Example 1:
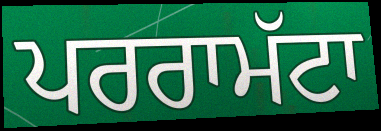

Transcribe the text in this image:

ਪਰਰਾਮੱਟਾ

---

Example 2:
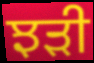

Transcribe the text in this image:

ਝੜੀ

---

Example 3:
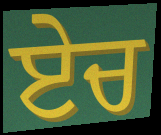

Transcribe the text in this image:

ਏਚ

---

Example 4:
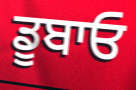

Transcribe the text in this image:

ਡੂਬਾਓ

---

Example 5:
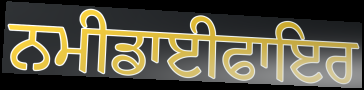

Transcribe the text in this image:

ਨਮੀਡਾਈਫਾਇਰ